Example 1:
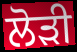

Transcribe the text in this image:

ਲੋੜੀ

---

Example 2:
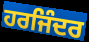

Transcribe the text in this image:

ਹਰਜਿੰਦਰ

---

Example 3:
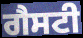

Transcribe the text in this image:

ਗੈਸਟੀ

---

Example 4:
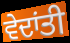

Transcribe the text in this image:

ਵੇਦਾਂਤੀ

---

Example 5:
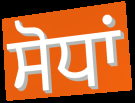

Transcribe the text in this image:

ਸੋਧਾਂ